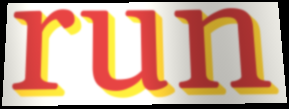
run